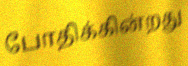
போதிக்கின்றது